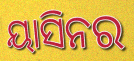
ୟାସିନର